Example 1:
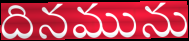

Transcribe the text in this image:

దినమును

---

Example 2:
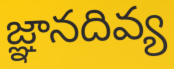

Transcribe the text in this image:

జ్ఞానదివ్య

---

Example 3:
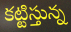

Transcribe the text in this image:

కట్టిస్తున్న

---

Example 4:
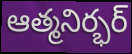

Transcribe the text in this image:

ఆత్మనిర్భర్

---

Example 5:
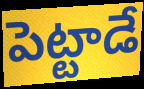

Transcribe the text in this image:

పెట్టాడే